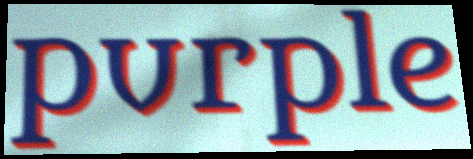
purple